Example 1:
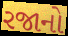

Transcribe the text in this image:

રજાનો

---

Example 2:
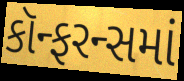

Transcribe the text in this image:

કૉન્ફરન્સમાં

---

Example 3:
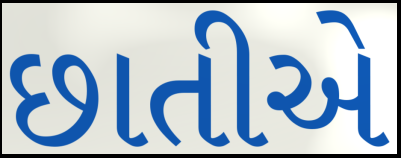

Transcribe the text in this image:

છાતીએ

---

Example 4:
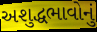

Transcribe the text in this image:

અશુદ્ધભાવોનું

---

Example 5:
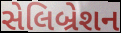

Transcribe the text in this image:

સેલિબ્રેશન